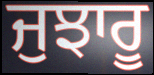
ਜੁਝਾਰੂ